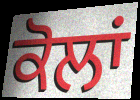
ਕੋਲਾਂ